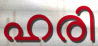
ഹരി